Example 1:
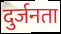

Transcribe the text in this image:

दुर्जनता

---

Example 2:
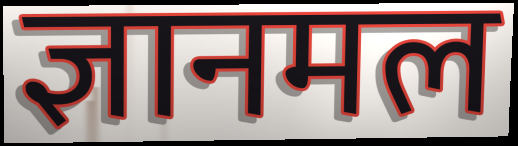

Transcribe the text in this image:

ज्ञानमल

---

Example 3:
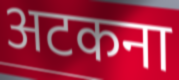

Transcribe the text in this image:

अटकना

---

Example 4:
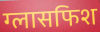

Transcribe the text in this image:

ग्लासफिश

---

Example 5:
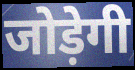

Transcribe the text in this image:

जोड़ेगी